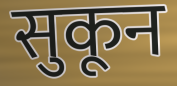
सुकून